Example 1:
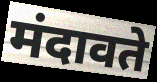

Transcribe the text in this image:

मंदावते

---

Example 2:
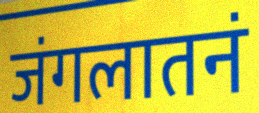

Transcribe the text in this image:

जंगलातनं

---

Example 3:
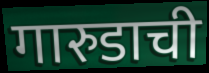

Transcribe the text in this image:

गारुडाची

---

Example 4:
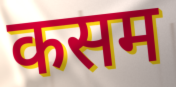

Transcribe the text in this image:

कसम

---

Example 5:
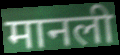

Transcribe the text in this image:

मानली